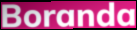
Boranda